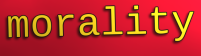
morality